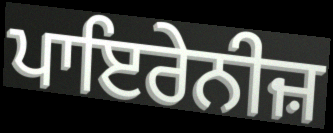
ਪਾਇਰੇਨੀਜ਼